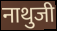
नाथुजी